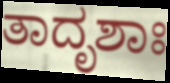
ತಾದೃಶಾಃ